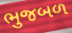
ભુજબળ